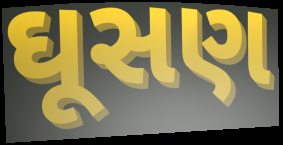
ઘૂસણ